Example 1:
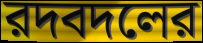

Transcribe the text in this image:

রদবদলের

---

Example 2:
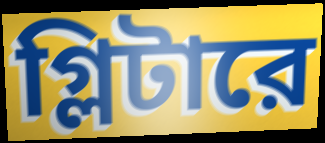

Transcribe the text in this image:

গ্লিটারে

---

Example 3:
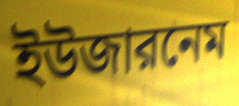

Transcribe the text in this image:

ইউজারনেম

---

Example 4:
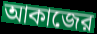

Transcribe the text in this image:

আকাজের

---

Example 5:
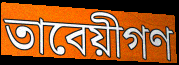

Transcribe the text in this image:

তাবেয়ীগণ